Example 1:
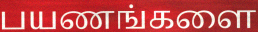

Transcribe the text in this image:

பயணங்களை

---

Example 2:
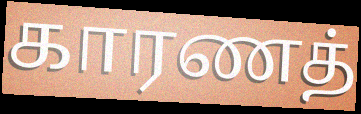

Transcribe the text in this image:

காரணத்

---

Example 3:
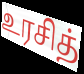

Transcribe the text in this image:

உரசித்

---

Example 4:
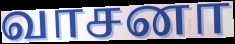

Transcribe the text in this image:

வாசனா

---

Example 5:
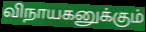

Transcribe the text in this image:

விநாயகனுக்கும்